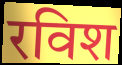
रविश